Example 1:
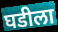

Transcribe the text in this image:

घडीला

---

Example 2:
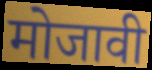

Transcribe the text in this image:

मोजावी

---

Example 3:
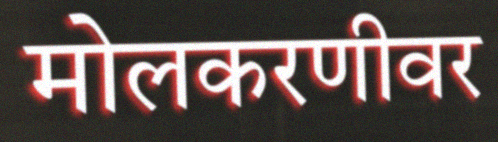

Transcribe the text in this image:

मोलकरणीवर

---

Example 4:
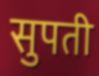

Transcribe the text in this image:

सुपती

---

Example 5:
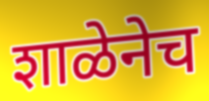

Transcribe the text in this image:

शाळेनेच